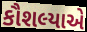
કૌશલ્યાએ